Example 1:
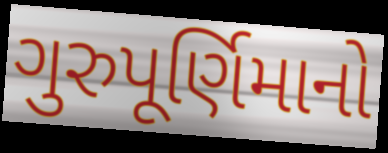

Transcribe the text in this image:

ગુરુપૂર્ણિમાનો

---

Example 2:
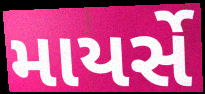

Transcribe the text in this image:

માયર્સે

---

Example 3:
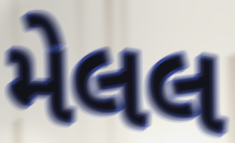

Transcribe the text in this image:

મેલલ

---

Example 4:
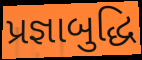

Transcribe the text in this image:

પ્રજ્ઞાબુદ્ધિ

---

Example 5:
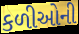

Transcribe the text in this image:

કળીઓની